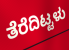
ತೆರೆದಿಟ್ಟಳು